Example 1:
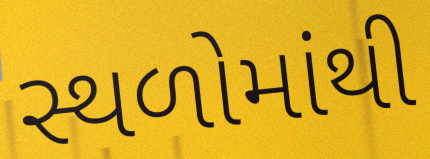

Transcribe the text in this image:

સ્થળોમાંથી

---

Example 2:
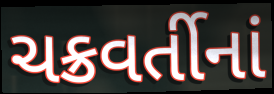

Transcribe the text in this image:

ચક્રવર્તીનાં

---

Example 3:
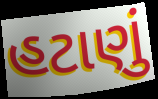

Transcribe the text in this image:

હટાણું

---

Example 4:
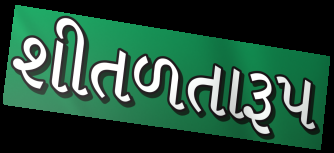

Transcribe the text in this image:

શીતળતારૂપ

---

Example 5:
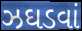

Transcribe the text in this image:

ઝઘડવાં